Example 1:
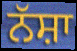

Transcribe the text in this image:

ਨੱਸ਼ਾ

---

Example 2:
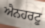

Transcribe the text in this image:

ਐਨਹਰਟੂ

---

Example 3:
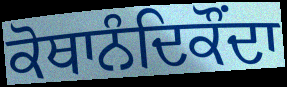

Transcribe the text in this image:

ਕੋਥਾਨੰਦਿਕੌਂਦਾ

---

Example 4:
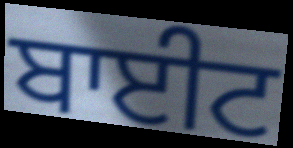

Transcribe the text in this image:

ਬਾਈਟ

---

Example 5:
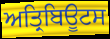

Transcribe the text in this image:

ਅਤ੍ਰਿਬਿਊਟਸ